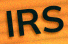
IRS